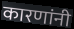
कारणांनी